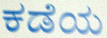
ಕಡೆಯ